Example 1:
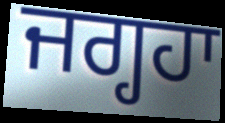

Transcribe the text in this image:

ਜਗ੍ਹਹਾ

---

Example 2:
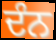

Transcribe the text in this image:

ਦੰਨ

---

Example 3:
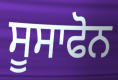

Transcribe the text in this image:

ਸੂਸਾਫੋਨ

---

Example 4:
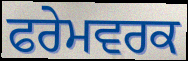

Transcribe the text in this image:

ਫਰੇਮਵਰਕ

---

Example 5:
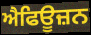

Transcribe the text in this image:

ਐਫਿਊਜ਼ਨ